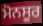
ਮੋਨਸੂਰ